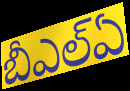
బీఎల్ఏ